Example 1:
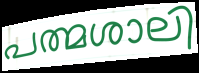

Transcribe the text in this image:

പത്മശാലി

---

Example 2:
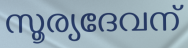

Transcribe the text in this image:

സൂര്യദേവന്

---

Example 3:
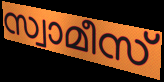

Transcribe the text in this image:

സ്വാമീസ്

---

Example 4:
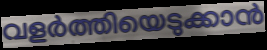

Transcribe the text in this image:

വളർത്തിയെടുക്കാൻ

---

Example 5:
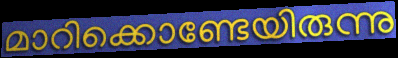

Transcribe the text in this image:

മാറിക്കൊണ്ടേയിരുന്നു